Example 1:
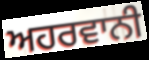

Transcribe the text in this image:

ਅਹਰਵਾਨੀ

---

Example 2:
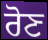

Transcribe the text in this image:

ਰੋਣ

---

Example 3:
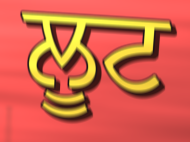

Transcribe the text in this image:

ਲੂਟ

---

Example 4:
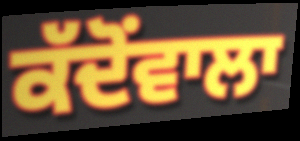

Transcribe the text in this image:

ਕੱਦੋਂਵਾਲਾ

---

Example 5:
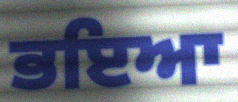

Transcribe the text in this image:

ਭਇਆ